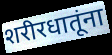
शरीरधातूंना